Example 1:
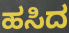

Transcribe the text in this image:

ಹಸಿದ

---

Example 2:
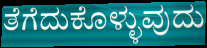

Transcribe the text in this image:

ತೆಗೆದುಕೊಳ್ಳುವುದು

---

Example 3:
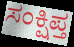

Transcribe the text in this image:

ಸಂಕ್ಷಿಪ್ತ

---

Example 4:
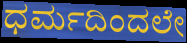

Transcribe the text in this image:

ಧರ್ಮದಿಂದಲೇ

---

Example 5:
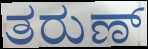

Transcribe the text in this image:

ತರುಣ್